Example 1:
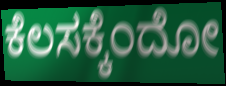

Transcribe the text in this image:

ಕೆಲಸಕ್ಕೆಂದೋ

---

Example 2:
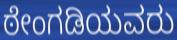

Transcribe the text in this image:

ಠೇಂಗಡಿಯವರು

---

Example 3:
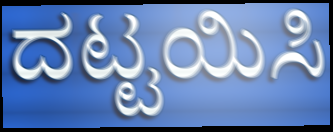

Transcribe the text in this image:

ದಟ್ಟಯಿಸಿ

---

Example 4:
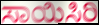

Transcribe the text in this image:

ಸಾಯಿಸಿರಿ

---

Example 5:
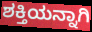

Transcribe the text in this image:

ಶಕ್ತಿಯನ್ನಾಗಿ